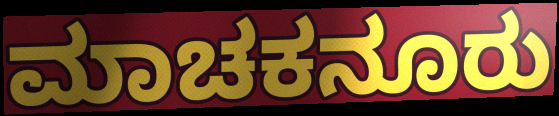
ಮಾಚಕನೂರು